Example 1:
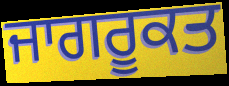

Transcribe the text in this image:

ਜਾਗਰੂਕਤ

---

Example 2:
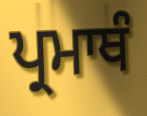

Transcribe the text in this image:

ਪ੍ਰਮਾਥੰ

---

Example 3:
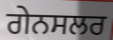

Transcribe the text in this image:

ਗੇਨਸਲਰ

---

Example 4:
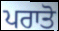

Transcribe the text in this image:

ਪਰਾਤੋ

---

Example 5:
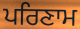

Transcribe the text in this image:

ਪਰਿਣਾਮ